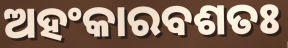
ଅହଂକାରବଶତଃ